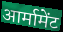
आर्मामेंट